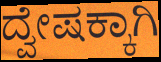
ದ್ವೇಷಕ್ಕಾಗಿ